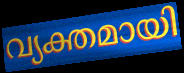
വ്യക്തമായി